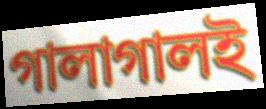
গালাগালই